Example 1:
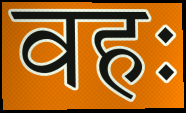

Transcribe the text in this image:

वहः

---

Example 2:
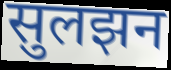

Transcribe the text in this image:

सुलझन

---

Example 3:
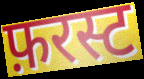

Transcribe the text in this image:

फ़रस्ट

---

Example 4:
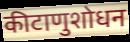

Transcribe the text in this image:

कीटाणुशोधन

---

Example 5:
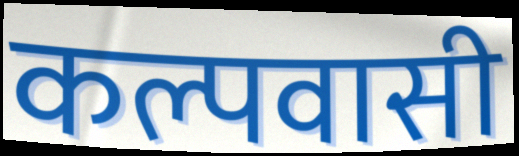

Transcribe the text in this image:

कल्पवासी